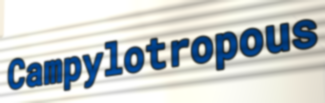
Campylotropous